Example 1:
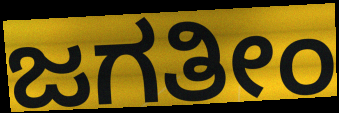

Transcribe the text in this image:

ಜಗತೀಂ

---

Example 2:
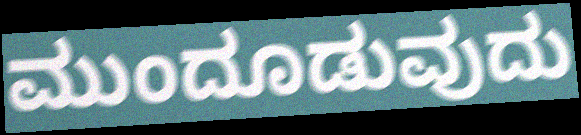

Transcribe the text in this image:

ಮುಂದೂಡುವುದು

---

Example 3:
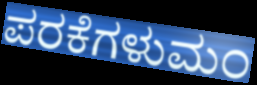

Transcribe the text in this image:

ಪರಕೆಗಳುಮಂ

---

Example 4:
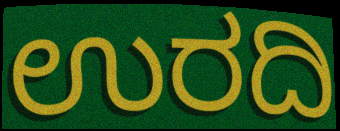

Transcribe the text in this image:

ಉರದಿ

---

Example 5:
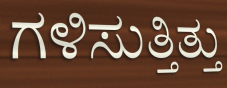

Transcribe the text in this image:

ಗಳಿಸುತ್ತಿತ್ತು